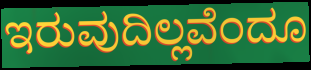
ಇರುವುದಿಲ್ಲವೆಂದೂ